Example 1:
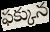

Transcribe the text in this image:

ఫక్కున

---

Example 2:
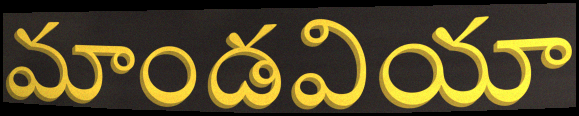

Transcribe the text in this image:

మాండవియా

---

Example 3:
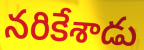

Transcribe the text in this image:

నరికేశాడు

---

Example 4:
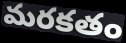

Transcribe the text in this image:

మరకతం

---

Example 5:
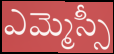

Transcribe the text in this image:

ఎమ్మెస్సీ